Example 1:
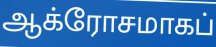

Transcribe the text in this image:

ஆக்ரோசமாகப்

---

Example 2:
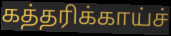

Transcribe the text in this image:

கத்தரிக்காய்ச்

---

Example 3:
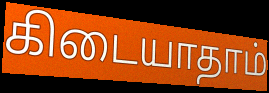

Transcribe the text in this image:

கிடையாதாம்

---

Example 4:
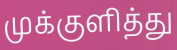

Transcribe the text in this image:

முக்குளித்து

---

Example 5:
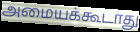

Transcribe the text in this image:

அமையக்கூடாது